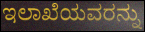
ಇಲಾಖೆಯವರನ್ನು